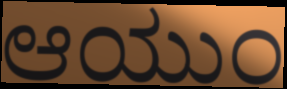
ಆಯುಂ